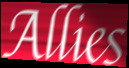
Allies